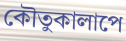
কৌতুকালাপে